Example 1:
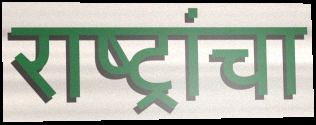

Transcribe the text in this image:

राष्ट्रांचा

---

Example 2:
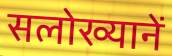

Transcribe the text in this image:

सलोख्यानें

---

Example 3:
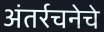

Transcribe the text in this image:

अंतर्रचनेचे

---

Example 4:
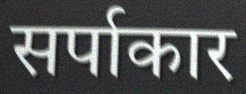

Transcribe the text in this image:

सर्पाकार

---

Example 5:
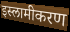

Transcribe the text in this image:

इस्लामीकरण